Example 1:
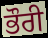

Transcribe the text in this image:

ਭੌਰੀ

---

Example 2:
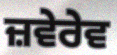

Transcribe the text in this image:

ਜ਼ਵੇਰੇਵ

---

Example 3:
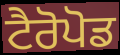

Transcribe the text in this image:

ਟੈਰੋਪੋਡ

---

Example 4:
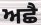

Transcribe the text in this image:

ਅਛੈ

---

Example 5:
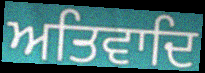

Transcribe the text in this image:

ਅਤਿਵਾਦਿ